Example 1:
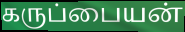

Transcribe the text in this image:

கருப்பையன்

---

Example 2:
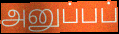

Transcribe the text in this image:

அனுப்பப்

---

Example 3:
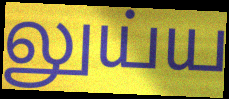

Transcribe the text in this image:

லுய்ய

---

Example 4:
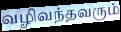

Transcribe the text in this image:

வழிவந்தவரும்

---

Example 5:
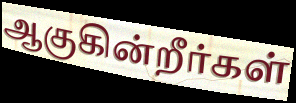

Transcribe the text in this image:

ஆகுகின்றீர்கள்